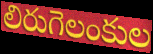
లిరుగెలంకుల